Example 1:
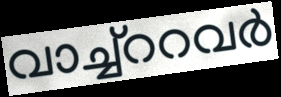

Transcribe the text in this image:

വാച്ച്ററവർ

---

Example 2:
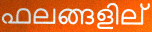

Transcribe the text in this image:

ഫലങ്ങളില്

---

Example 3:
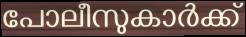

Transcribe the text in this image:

പോലീസുകാർക്ക്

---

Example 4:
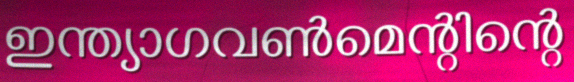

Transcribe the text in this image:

ഇന്ത്യാഗവൺമെന്റിന്റെ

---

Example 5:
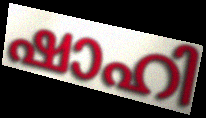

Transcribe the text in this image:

ഷാഹി